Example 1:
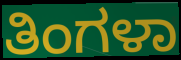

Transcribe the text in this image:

ತಿಂಗಳಾ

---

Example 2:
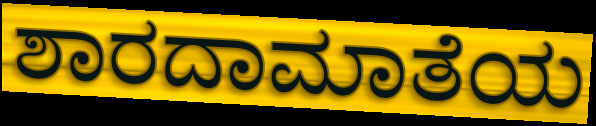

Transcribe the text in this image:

ಶಾರದಾಮಾತೆಯ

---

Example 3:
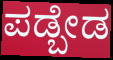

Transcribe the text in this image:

ಪಡ್ಬೇಡ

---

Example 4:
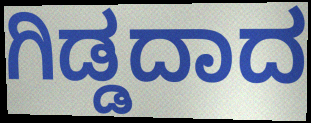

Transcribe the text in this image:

ಗಿಡ್ಡದಾದ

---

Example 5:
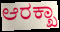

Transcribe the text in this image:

ಆರಕ್ಖಾ